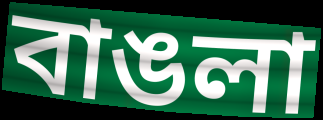
বাঙলা